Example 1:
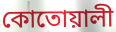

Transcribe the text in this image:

কোতোয়ালী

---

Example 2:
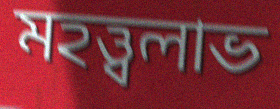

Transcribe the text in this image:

মহত্ত্বলাভ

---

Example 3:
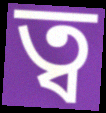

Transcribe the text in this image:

ত্ব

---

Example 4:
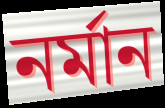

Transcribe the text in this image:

নর্মান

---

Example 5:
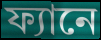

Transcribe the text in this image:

ফ্যানে